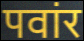
पवांर